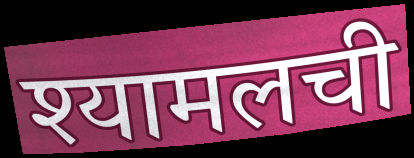
श्यामलची